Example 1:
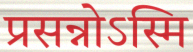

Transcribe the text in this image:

प्रसन्नोऽस्मि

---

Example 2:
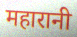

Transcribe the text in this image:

महारानी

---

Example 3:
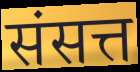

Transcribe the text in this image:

संसत्त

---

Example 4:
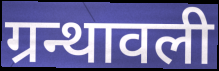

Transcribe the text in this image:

ग्रन्थावली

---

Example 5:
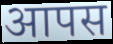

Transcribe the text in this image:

आपस